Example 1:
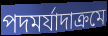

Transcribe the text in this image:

পদমর্যাদাক্রমে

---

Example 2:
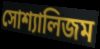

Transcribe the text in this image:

সোশ্যালিজম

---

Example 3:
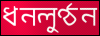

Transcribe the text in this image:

ধনলুণ্ঠন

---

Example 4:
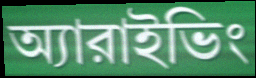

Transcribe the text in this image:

অ্যারাইভিং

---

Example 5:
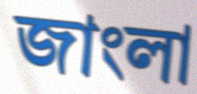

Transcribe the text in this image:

জাংলা